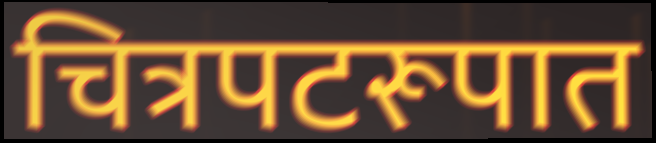
चित्रपटरूपात